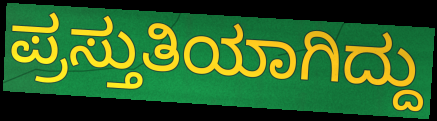
ಪ್ರಸ್ತುತಿಯಾಗಿದ್ದು